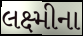
લક્ષ્મીના